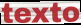
texto